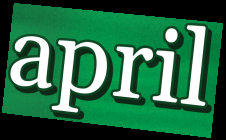
april